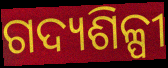
ଗଦ୍ୟଶିଳ୍ପୀ